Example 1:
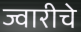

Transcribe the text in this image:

ज्वारीचे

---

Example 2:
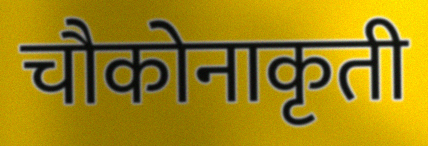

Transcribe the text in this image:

चौकोनाकृती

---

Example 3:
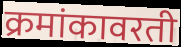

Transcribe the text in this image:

क्रमांकावरती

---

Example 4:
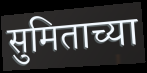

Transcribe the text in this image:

सुमिताच्या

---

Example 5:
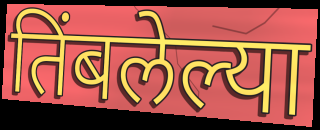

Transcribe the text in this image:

तिंबलेल्या